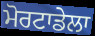
ਮੋਰਟਾਡੇਲਾ